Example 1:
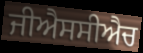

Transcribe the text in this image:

ਜੀਐਸਸੀਐਚ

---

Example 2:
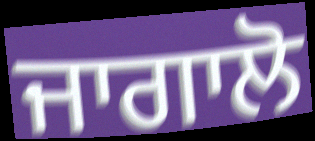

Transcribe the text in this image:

ਜਾਗਾਲੋ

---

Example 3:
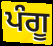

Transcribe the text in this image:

ਪੰਗੂ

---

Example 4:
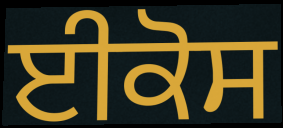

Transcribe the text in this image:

ਈਕੋਸ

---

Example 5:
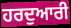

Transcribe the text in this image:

ਹਰਦੁਆਰੀ